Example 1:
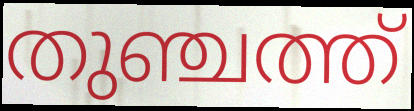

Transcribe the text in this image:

തുഞ്ചത്ത്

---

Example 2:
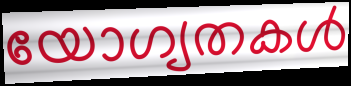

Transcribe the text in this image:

യോഗ്യതകൾ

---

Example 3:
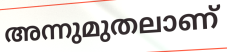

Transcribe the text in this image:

അന്നുമുതലാണ്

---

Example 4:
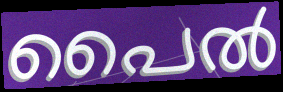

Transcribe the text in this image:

പൈൽ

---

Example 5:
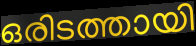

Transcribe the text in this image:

ഒരിടത്തായി